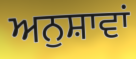
ਅਨੁਸ਼ਾਵਾਂ